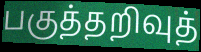
பகுத்தறிவுத்